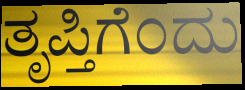
ತೃಪ್ತಿಗೆಂದು